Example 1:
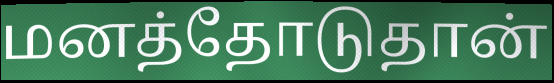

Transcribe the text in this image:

மனத்தோடுதான்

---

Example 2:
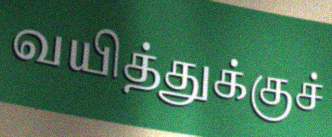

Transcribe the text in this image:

வயித்துக்குச்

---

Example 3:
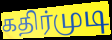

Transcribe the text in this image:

கதிர்முடி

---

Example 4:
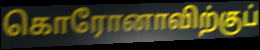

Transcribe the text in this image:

கொரோனாவிற்குப்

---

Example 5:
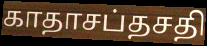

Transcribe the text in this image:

காதாசப்தசதி